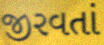
જીરવતાં